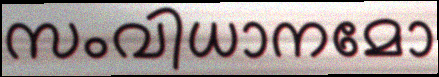
സംവിധാനമോ